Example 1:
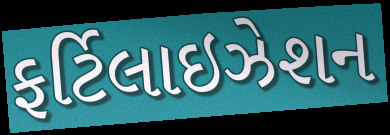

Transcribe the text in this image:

ફર્ટિલાઇઝેશન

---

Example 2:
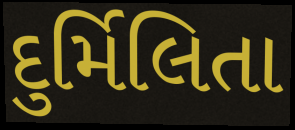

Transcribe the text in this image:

દુર્મિલિતા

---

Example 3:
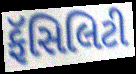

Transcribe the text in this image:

ફૅસિલિટી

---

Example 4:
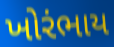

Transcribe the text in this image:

ખોરંભાય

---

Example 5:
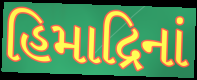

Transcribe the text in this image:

હિમાદ્રિનાં